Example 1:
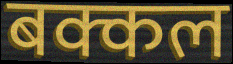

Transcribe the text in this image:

बक्कल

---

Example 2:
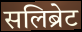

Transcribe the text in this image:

सलिब्रेट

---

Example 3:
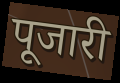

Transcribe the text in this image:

पूजारी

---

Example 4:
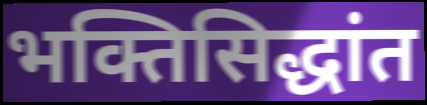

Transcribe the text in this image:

भक्तिसिद्धांत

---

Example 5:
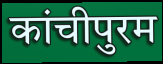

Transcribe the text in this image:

कांचीपुरम